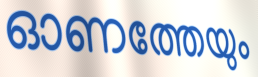
ഓണത്തേയും